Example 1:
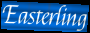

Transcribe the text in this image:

Easterling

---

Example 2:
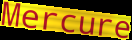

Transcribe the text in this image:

Mercure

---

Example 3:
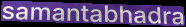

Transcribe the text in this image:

samantabhadra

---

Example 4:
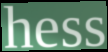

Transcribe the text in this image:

hess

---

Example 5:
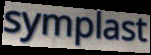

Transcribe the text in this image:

symplast